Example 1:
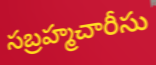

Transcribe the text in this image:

సబ్రహ్మచారీసు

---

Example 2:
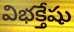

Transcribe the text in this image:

విభక్తేషు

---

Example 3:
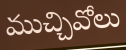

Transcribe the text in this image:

ముచ్చివోలు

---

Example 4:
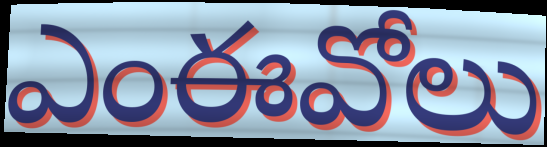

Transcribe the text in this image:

ఎంఈవోలు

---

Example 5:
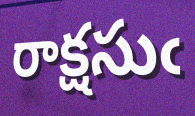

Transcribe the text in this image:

రాక్షసుఁ